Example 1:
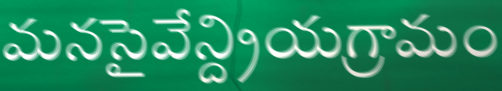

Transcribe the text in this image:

మనసైవేన్ద్రియగ్రామం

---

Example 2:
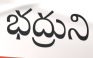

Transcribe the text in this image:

భద్రుని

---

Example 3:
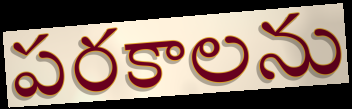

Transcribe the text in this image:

పరకాలను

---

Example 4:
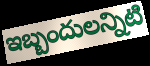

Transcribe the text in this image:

ఇబ్బందులన్నిటి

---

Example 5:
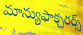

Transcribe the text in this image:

మాన్యుఫాక్చరర్స్